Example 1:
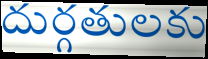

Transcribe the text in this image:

దుర్గతులకు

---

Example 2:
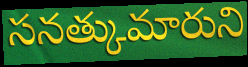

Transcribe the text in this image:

సనత్కుమారుని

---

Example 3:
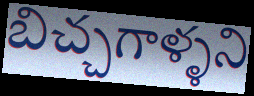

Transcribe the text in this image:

బిచ్చగాళ్ళని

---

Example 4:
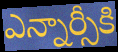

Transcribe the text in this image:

ఎన్నార్సీకి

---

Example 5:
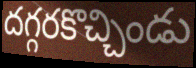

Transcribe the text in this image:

దగ్గరకొచ్చిండు